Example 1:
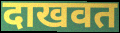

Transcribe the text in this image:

दाखवत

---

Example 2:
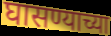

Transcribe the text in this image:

घासण्याच्या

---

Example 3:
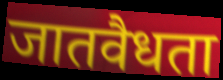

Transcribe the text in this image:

जातवैधता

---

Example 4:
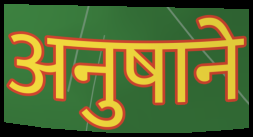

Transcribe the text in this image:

अनुषाने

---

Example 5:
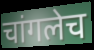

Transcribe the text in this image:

चांगलेच